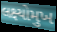
લક્ષ્યોમુખ